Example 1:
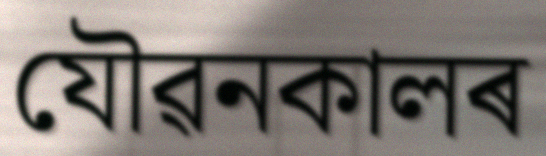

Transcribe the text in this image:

যৌৱনকালৰ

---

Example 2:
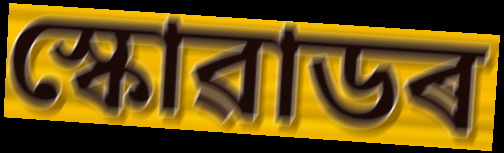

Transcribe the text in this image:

স্কোৱাডৰ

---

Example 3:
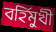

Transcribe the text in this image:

বৰ্হিমুখী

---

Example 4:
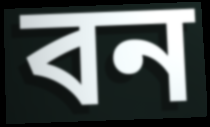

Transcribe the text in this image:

বন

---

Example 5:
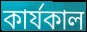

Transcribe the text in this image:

কাৰ্যকাল